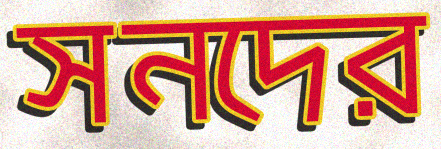
সনদের